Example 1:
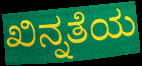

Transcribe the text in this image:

ಖಿನ್ನತೆಯ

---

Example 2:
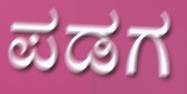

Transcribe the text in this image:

ಪಡಗ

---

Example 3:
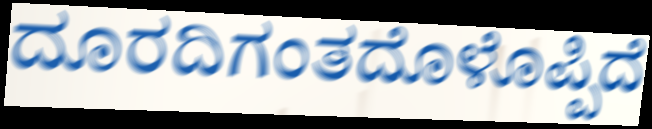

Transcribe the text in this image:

ದೂರದಿಗಂತದೊಳೊಪ್ಪಿದೆ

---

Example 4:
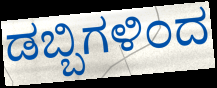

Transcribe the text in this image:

ಡಬ್ಬಿಗಳಿಂದ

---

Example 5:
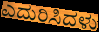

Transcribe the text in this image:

ಎದುರಿಸಿದಳು